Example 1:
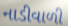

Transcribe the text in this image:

નાડીવાળી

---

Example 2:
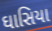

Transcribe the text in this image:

ઘાસિયા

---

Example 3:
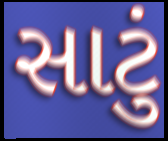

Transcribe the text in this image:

સાટું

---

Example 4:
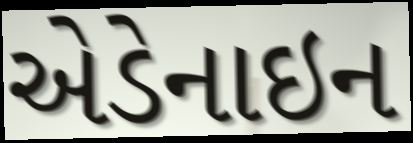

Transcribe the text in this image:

એડેનાઇન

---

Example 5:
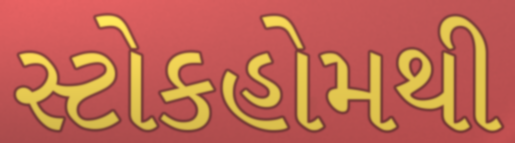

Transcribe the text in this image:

સ્ટોકહોમથી